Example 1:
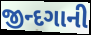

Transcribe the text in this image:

જીન્દગાની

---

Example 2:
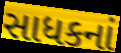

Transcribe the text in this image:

સાધકનાં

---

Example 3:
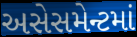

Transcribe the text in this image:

અસેસમેન્ટમાં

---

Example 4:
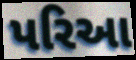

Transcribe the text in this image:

પરિઆ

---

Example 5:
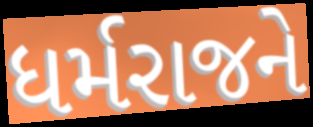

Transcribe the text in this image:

ધર્મરાજને